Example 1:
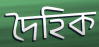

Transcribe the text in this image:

দৈহিক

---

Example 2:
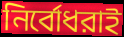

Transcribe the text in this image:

নির্বোধরাই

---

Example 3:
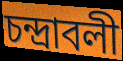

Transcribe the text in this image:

চন্দ্রাবলী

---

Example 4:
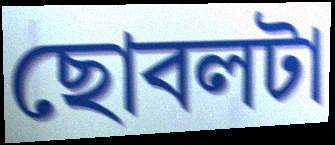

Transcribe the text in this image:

ছোবলটা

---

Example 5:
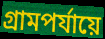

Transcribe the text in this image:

গ্রামপর্যায়ে